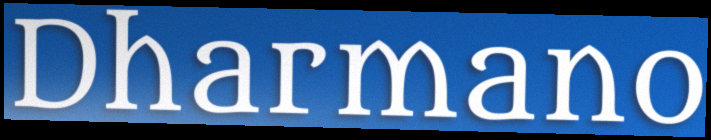
Dharmano